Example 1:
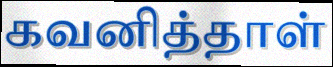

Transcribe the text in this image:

கவனித்தாள்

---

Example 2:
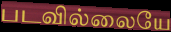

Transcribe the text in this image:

படவில்லையே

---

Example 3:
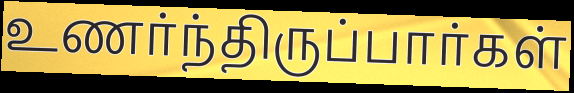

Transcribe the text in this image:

உணர்ந்திருப்பார்கள்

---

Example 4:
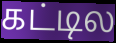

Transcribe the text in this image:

கட்டில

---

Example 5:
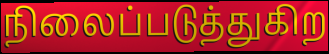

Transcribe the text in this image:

நிலைப்படுத்துகிற